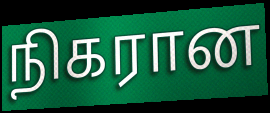
நிகரான